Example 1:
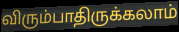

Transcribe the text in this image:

விரும்பாதிருக்கலாம்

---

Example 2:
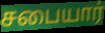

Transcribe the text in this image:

சபையார்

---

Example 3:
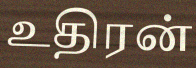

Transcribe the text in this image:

உதிரன்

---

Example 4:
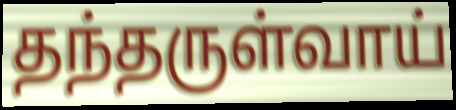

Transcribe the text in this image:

தந்தருள்வாய்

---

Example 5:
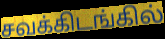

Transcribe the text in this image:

சவக்கிடங்கில்